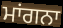
ਮਾਂਗਨਾ